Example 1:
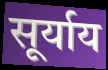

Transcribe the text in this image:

सूर्याय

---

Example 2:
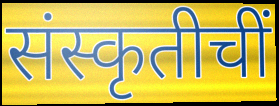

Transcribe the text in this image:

संस्कृतीचीं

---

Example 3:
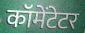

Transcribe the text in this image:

कॉमेंटेटर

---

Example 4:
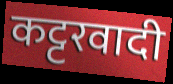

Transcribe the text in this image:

कट्टरवादी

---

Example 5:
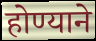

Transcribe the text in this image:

होण्याने